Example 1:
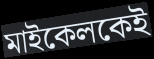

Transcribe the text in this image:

মাইকেলকেই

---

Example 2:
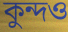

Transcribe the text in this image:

কুন্দও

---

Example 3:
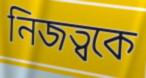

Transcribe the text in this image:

নিজত্বকে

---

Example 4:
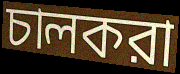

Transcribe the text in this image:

চালকরা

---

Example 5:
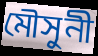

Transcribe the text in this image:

মৌসুনী